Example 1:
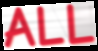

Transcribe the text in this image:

ALL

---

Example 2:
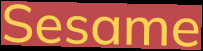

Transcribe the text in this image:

Sesame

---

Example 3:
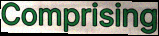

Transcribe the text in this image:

Comprising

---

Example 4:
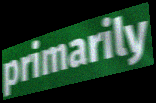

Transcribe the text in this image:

primarily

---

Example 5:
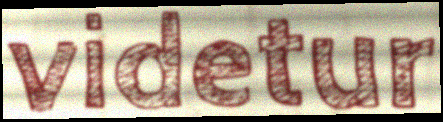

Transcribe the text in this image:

videtur